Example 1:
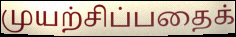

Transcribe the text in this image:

முயற்சிப்பதைக்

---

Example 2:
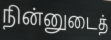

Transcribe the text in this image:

நின்னுடைத்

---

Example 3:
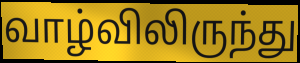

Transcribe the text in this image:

வாழ்விலிருந்து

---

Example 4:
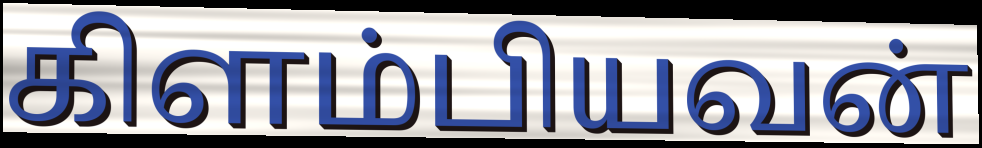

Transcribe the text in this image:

கிளம்பியவன்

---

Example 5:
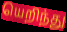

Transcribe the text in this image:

யெறிந்து